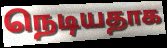
நெடியதாக